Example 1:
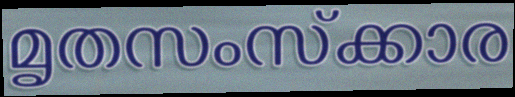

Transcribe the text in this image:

മൃതസംസ്‌ക്കാര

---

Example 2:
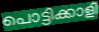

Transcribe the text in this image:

പൊട്ടിക്കാളി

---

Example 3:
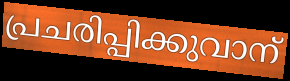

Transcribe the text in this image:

പ്രചരിപ്പിക്കുവാന്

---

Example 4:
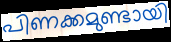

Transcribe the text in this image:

പിണക്കമുണ്ടായി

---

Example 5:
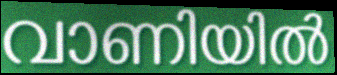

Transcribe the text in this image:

വാണിയിൽ